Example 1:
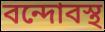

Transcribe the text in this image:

বন্দোবস্থ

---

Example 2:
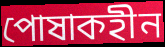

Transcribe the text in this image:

পোষাকহীন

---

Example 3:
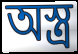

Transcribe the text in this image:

অস্ত্র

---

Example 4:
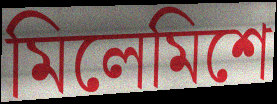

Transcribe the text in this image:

মিলেমিশে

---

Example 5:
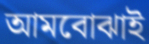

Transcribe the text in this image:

আমবোঝাই